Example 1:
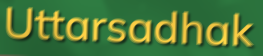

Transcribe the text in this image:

Uttarsadhak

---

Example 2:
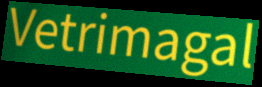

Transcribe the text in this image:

Vetrimagal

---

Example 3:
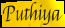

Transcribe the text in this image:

Puthiya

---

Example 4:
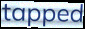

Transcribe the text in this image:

tapped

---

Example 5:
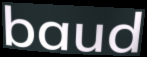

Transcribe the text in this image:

baud